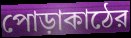
পোড়াকাঠের